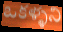
ఒకళ్ళని